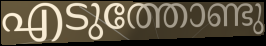
എടുത്തോണ്ടു